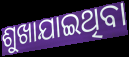
ଶୁଖାଯାଇଥିବା